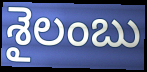
శైలంబు